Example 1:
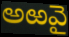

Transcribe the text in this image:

అఱవై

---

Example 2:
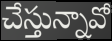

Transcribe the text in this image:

చేస్తున్నావో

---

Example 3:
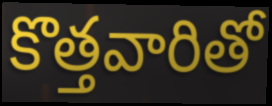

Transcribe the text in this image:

కొత్తవారితో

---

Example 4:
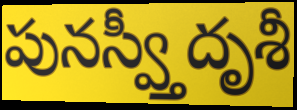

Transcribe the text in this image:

పునస్వ్తీదృశీ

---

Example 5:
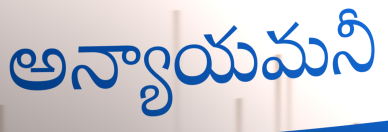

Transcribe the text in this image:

అన్యాయమనీ